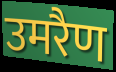
उमरैण